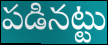
పడినట్టు